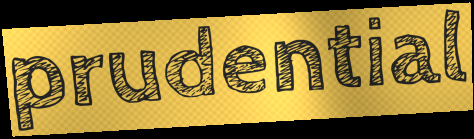
prudential